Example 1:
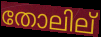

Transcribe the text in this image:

തോലില്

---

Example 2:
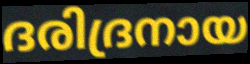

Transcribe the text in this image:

ദരിദ്രനായ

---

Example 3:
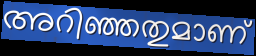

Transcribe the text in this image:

അറിഞ്ഞതുമാണ്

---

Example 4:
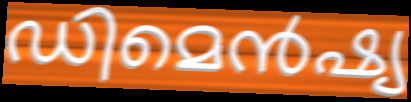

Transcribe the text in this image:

ഡിമെൻഷ്യ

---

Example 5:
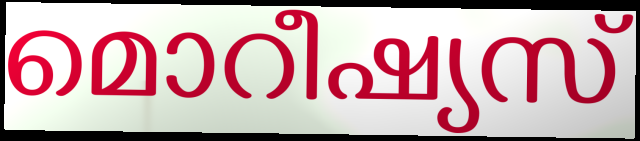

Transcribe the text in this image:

മൊറീഷ്യസ്